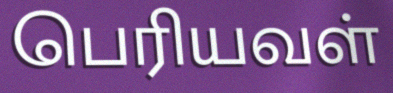
பெரியவள்